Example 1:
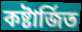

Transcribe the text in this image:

কষ্টার্জিত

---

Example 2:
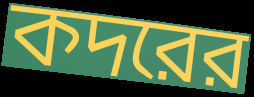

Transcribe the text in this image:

কদরের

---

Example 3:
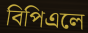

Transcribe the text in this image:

বিপিএলে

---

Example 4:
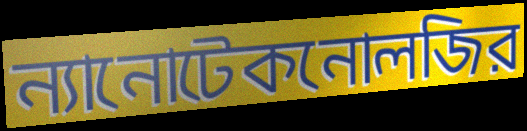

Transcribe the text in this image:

ন্যানোটেকনোলজির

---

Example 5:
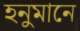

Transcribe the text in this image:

হনুমানে